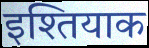
इश्तियाक